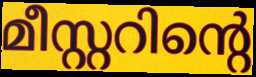
മീസ്റ്ററിന്റെ